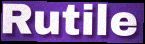
Rutile